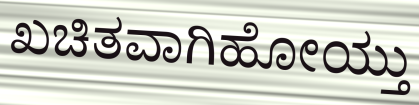
ಖಚಿತವಾಗಿಹೋಯ್ತು